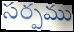
సర్పము